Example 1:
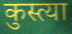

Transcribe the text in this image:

कुस्त्या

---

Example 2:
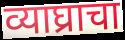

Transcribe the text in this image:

व्याघ्राचा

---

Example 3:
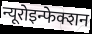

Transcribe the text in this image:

न्यूरोइन्फेक्शन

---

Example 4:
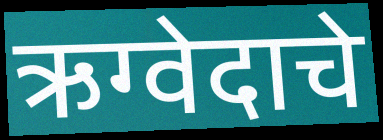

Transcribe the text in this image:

ऋग्वेदाचे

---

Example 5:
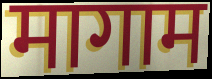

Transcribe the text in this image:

मागाम